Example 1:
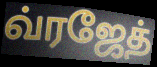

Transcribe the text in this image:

வ்ரஜேத்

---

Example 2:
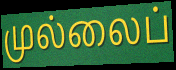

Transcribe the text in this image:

முல்லைப்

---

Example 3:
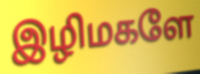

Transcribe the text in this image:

இழிமகளே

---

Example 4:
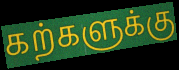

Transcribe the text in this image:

கற்களுக்கு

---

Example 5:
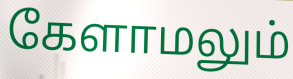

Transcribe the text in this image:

கேளாமலும்